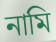
নামি